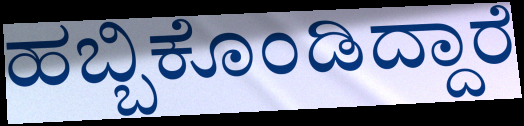
ಹಬ್ಬಿಕೊಂಡಿದ್ದಾರೆ